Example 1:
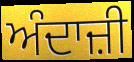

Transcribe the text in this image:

ਅੰਦਾਜ਼ੀ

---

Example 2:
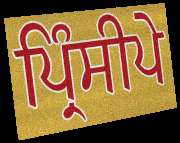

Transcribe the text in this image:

ਪ੍ਰਿੰਸੀਪੇ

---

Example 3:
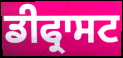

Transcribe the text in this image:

ਡੀਫ੍ਰਾਸਟ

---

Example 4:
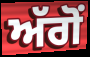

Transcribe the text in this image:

ਅੱਗੋਂ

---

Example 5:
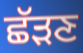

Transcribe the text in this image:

ਛੱੜਣ